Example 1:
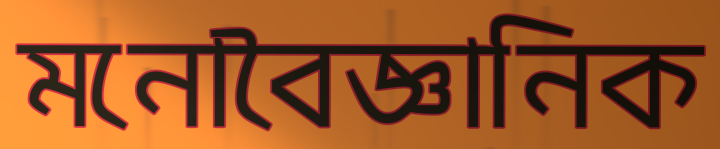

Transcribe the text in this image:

মনোবৈজ্ঞানিক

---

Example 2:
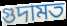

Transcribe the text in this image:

গুদামত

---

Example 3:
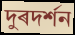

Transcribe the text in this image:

দুৰদৰ্শন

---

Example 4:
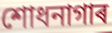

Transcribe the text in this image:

শোধনাগাৰ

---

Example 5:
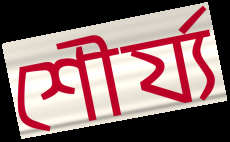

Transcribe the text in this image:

শৌৰ্য্য